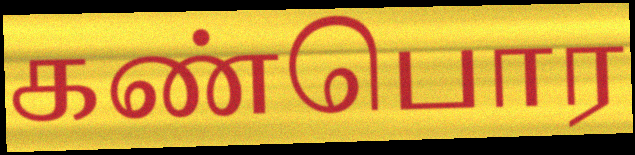
கண்பொர